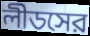
লীডসের